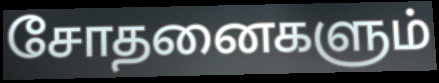
சோதனைகளும்